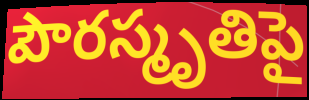
పౌరస్మృతిపై